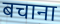
बचाना